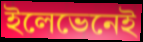
ইলেভেনেই